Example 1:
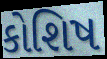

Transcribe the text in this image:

કોશિષ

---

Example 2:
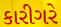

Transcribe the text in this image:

કારીગરે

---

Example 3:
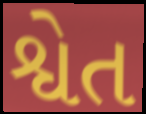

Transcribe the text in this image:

શ્વેત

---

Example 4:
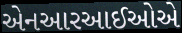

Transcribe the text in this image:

એનઆરઆઈઓએ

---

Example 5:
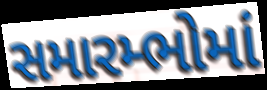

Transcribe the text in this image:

સમારમ્ભોમાં